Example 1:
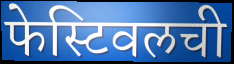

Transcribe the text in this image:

फेस्टिवलची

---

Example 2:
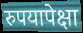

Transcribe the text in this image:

रुपयापेक्षा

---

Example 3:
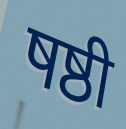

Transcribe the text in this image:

षष्ठी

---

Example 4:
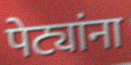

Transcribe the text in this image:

पेट्यांना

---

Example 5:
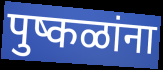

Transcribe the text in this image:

पुष्कळांना